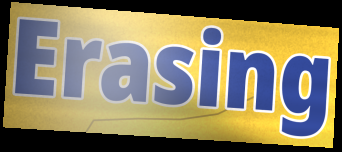
Erasing